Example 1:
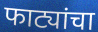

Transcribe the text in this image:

फाट्यांचा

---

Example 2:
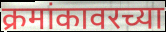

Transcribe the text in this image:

क्रमांकावरच्या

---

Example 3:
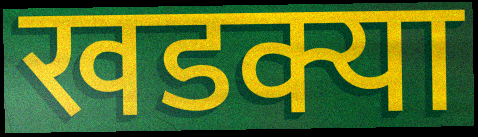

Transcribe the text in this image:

खडक्या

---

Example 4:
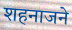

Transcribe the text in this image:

शहनाजने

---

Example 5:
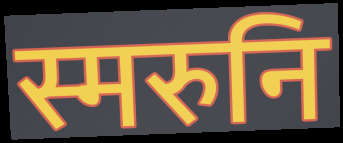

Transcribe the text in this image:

स्मरुनि